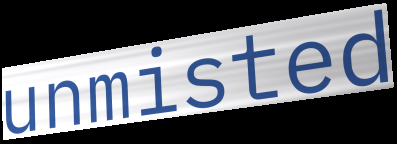
unmisted